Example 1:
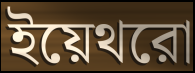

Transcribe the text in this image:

ইয়েথরো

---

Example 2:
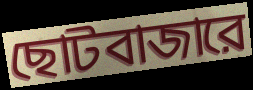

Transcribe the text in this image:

ছোটবাজারে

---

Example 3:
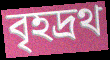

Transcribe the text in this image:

বৃহদ্রথ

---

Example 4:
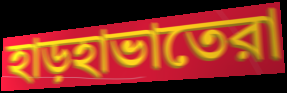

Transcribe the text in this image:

হাড়হাভাতেরা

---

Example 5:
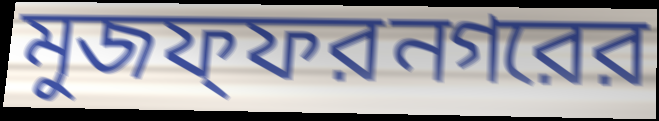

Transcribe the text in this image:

মুজফ্ফরনগরের